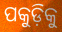
ପକୁଡ଼ିକୁ